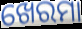
ଖେରମା